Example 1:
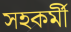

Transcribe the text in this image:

সহকর্মী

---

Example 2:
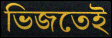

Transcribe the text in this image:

ভিজতেই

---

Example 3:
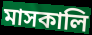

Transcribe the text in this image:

মাসকালি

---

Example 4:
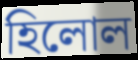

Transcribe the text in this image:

হিলোল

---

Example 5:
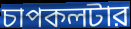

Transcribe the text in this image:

চাপকলটার